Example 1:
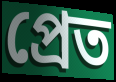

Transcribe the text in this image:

প্ৰেত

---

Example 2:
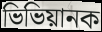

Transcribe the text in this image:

ভিভিয়ানক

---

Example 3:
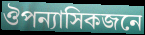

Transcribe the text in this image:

ঔপন্যাসিকজনে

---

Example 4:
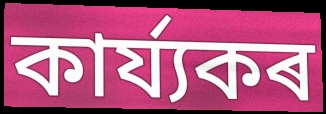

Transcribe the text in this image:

কাৰ্য্যকৰ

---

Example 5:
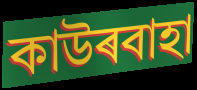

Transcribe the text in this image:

কাউৰবাহা